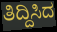
ತಿದ್ದಿಸಿದ